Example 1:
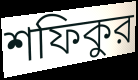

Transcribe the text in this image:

শফিকুর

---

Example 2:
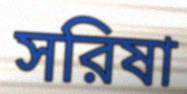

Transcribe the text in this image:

সরিষা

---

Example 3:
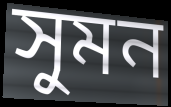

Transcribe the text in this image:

সুমন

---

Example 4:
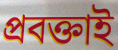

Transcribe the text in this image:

প্রবক্তাই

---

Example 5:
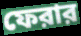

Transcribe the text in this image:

ফেরার